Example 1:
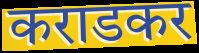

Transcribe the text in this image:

कराडकर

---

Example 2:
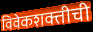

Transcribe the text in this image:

विवेकशक्तीची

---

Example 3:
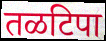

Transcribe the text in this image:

तळटिपा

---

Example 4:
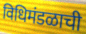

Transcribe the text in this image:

विधिमंडळाची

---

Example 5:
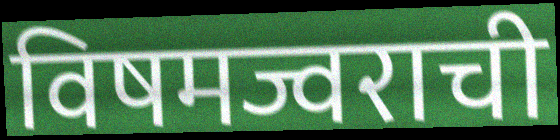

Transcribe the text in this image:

विषमज्वराची